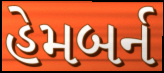
હેમબર્ન